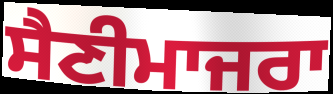
ਸੈਣੀਮਾਜਰਾ